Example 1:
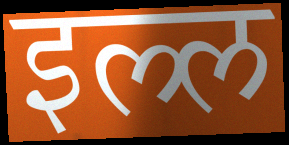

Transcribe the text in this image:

इल्ल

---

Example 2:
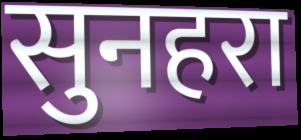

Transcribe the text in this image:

सुनहरा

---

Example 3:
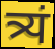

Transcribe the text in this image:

त्र्यं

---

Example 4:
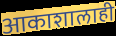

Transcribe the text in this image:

आकाशालाही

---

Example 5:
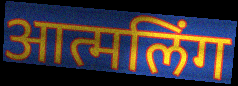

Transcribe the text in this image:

आत्मलिंग